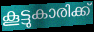
കൂട്ടുകാരിക്ക്